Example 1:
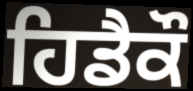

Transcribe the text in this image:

ਹਿਡੈਕੌ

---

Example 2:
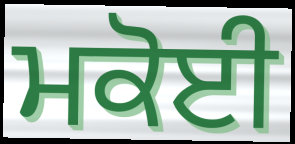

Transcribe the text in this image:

ਮਕੋਈ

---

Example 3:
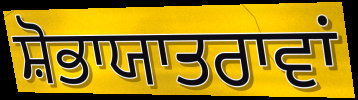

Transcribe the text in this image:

ਸ਼ੋਭਾਯਾਤਰਾਵਾਂ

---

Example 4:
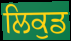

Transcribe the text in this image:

ਲਿਕੁਡ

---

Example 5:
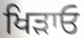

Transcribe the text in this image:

ਖਿੜਾਓ